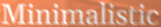
Minimalistic